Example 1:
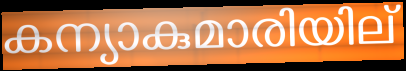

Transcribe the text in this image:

കന്യാകുമാരിയില്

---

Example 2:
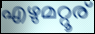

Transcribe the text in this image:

എഴുമറ്റൂര്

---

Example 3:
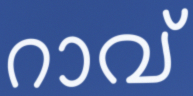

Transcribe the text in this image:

റാവ്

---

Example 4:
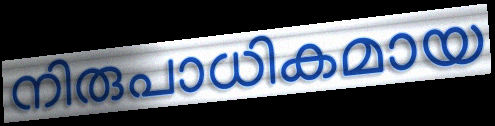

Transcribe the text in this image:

നിരുപാധികമായ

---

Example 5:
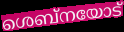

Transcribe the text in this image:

ശെബ്നയോട്